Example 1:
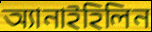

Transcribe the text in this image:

অ্যানাইহিলিন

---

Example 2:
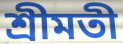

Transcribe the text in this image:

শ্রীমতী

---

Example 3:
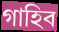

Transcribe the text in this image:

গাহিব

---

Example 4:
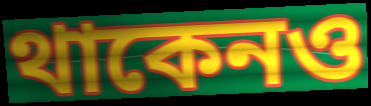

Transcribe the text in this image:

থাকেনও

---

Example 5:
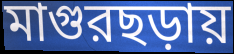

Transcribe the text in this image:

মাগুরছড়ায়